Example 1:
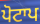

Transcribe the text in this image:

ਪੋਟਾਪ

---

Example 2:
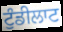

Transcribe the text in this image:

ਟੁੰਡੀਲਾਟ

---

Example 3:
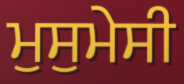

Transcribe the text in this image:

ਮੁਸੁਮੇਸੀ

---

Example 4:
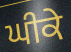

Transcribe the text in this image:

ਘੀਕੇ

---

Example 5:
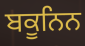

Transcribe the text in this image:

ਬਕੂਨਿਨ